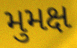
મુમક્ષ